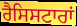
ਰੈਸਿਸਟਾਰਾਂ